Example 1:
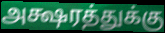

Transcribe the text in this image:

அக்ஷரத்துக்கு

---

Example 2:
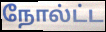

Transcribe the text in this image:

நோல்ட்ட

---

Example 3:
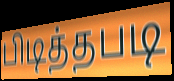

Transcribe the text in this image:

பிடித்தபடி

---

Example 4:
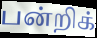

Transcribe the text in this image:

பன்றிக்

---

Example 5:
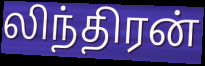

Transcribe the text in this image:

லிந்திரன்